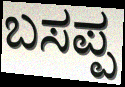
ಬಸಪ್ಪ